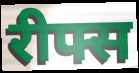
रीफ्स